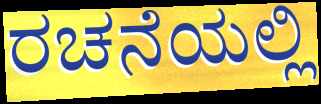
ರಚನೆಯಲ್ಲಿ